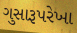
ગુસારૂપરેખા